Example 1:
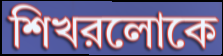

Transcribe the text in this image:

শিখরলোকে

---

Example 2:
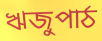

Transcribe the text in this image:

ঋজুপাঠ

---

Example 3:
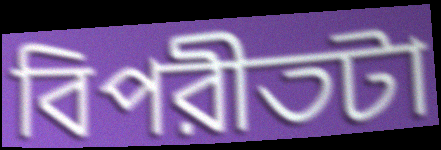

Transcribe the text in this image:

বিপরীতটা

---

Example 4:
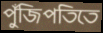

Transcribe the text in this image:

পুঁজিপতিতে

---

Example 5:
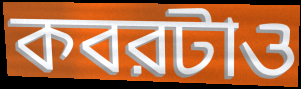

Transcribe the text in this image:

কবরটাও